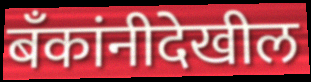
बँकांनीदेखील